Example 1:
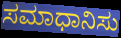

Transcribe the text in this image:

ಸಮಾಧಾನಿಸು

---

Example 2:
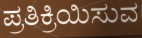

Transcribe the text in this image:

ಪ್ರತಿಕ್ರಿಯಿಸುವ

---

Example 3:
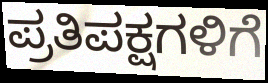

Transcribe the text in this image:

ಪ್ರತಿಪಕ್ಷಗಳಿಗೆ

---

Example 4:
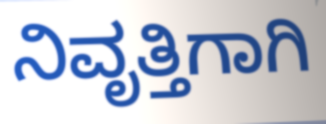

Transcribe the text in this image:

ನಿವೃತ್ತಿಗಾಗಿ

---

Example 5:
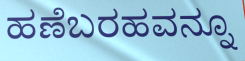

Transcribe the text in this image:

ಹಣೆಬರಹವನ್ನೂ